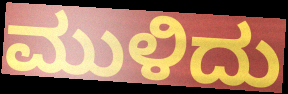
ಮುಳಿದು